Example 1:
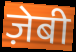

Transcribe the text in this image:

ज़ेबी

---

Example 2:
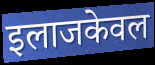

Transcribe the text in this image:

इलाजकेवल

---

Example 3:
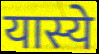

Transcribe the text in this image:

यास्ये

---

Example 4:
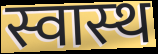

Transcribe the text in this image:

स्‍वास्‍थ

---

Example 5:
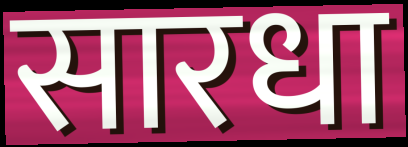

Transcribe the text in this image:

सारधा